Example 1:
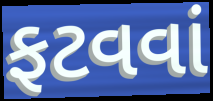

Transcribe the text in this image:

ફટવવાં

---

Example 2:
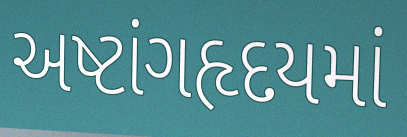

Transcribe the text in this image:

અષ્ટાંગહૃદયમાં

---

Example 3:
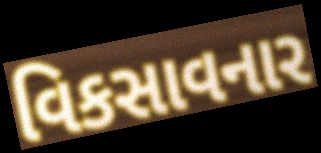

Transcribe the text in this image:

વિકસાવનાર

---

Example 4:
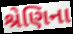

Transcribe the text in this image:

શ્રેણિના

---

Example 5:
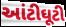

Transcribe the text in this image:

આંટીઘૂટી